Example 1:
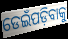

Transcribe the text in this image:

ଡେଇଁପଡ଼ିବାକୁ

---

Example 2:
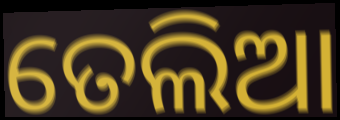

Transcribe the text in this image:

ତେଲିଆ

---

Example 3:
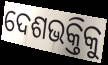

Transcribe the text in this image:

ଦେଶଭକ୍ତିକୁ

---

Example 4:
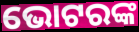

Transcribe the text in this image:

ଭୋଟରଙ୍କ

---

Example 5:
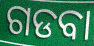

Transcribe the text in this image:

ଗଡବା